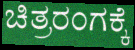
ಚಿತ್ರರಂಗಕ್ಕೆ